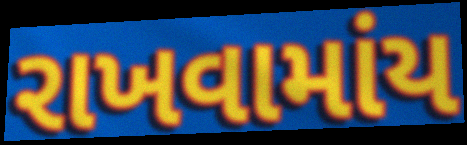
રાખવામાંય